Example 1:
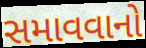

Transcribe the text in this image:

સમાવવાનો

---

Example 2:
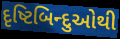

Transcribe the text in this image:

દૃષ્ટિબિન્દુઓથી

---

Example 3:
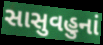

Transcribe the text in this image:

સાસુવહુનાં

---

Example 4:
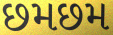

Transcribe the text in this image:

છમછમ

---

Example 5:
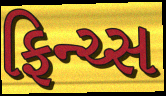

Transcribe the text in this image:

ફિન્ચ્સ